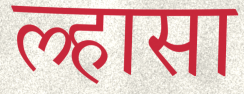
ल्हासा